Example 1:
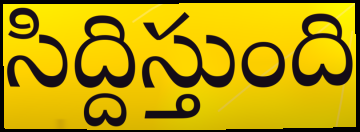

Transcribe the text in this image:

సిద్దిస్తుంది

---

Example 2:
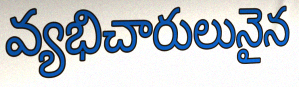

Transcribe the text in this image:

వ్యభిచారులునైన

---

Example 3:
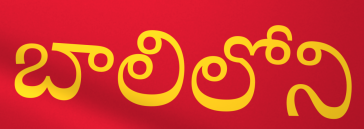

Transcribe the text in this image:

బాలిలోని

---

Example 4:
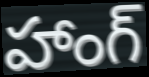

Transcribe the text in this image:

హాంగ్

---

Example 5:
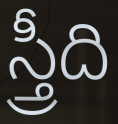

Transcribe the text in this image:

స్త్రీది